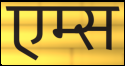
एम्स